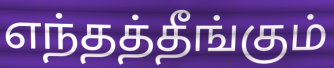
எந்தத்தீங்கும்